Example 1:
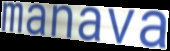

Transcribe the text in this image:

manava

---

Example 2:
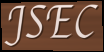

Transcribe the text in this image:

JSEC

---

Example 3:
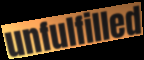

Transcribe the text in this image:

unfulfilled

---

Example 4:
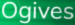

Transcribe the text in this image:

Ogives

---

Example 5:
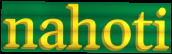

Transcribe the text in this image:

nahoti